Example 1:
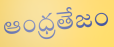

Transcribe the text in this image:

ఆంధ్రతేజం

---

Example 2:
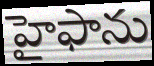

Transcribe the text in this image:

హైఫాను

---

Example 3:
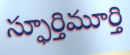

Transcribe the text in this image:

స్ఫూర్తిమూర్తి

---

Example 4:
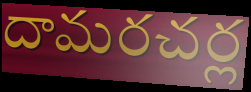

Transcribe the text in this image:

దామరచర్ల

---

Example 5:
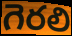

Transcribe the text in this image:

గెరలి